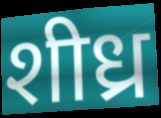
शीध्र